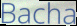
Bacha